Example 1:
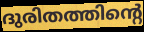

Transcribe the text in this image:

ദുരിതത്തിന്റെ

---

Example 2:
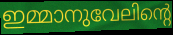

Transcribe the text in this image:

ഇമ്മാനുവേലിന്റെ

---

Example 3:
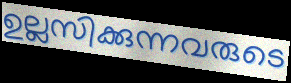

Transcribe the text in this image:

ഉല്ലസിക്കുന്നവരുടെ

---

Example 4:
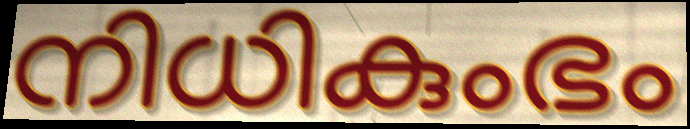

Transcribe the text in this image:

നിധികുംഭം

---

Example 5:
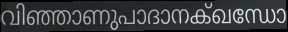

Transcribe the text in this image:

വിഞ്ഞാണുപാദാനക്ഖന്ധോ